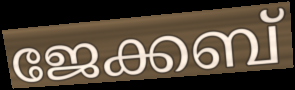
ജേക്കബ്